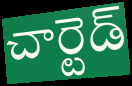
చార్టెడ్